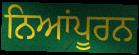
ਨਿਆਂਪੂਰਨ